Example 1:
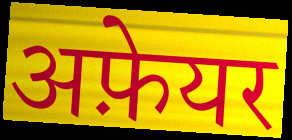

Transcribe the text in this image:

अफ़ेयर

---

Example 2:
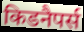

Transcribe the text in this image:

किडनैपर्स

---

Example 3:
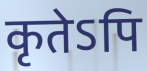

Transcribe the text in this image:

कृतेऽपि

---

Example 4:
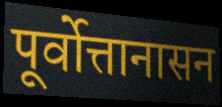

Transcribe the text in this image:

पूर्वोत्तानासन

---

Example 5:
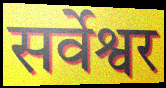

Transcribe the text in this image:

सर्वेश्वर